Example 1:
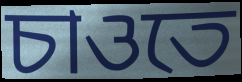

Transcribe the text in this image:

চাওতে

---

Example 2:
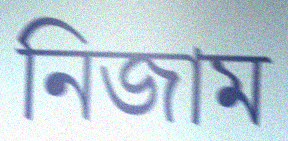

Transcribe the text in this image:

নিজাম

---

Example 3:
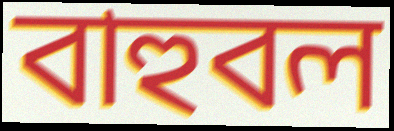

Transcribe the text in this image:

বাহুবল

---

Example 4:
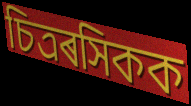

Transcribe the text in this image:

চিত্ৰৰসিকক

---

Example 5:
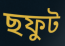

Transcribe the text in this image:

ছফুট